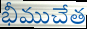
భీముచేత